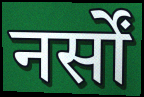
नर्सों